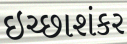
ઇચ્છાશંકર